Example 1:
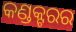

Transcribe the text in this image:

କଣ୍ଡକ୍ଟରର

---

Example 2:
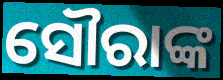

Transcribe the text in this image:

ସୌରାଙ୍କ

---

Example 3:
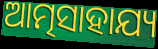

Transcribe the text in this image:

ଆତ୍ମସାହାଯ୍ୟ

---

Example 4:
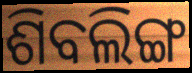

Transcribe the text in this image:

ଶିବଲିଙ୍ଗ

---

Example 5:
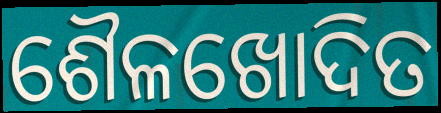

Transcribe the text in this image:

ଶୈଳଖୋଦିତ